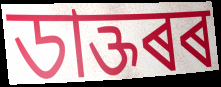
ডাক্তৰৰ